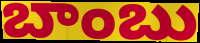
బాంబు